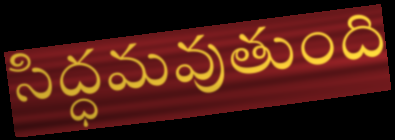
సిద్ధమవుతుంది